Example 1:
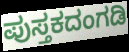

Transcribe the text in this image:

ಪುಸ್ತಕದಂಗಡಿ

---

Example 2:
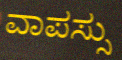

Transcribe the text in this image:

ವಾಪಸ್ಸು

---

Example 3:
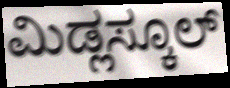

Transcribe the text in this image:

ಮಿಡ್ಲಸ್ಕೂಲ್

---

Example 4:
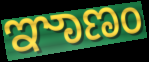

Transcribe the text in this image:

ಞಾಣಂ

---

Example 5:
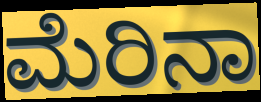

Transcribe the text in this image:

ಮೆರಿನಾ